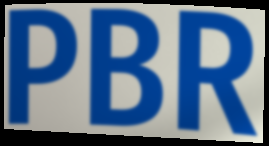
PBR